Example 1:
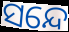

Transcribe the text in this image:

ସନ୍ଦେ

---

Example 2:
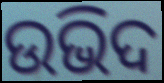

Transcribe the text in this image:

ଉଭିଦ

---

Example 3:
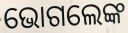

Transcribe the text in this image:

ଭୋଗଲେଙ୍କ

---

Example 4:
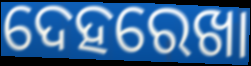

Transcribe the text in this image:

ଦେହରେଖା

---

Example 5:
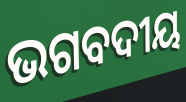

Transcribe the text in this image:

ଭଗବଦୀୟ